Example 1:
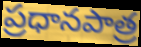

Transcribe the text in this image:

ప్రధానపాత్ర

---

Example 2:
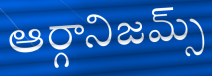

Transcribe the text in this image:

ఆర్గానిజమ్స్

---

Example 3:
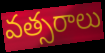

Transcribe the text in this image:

వత్సరాలు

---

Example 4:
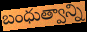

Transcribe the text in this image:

బంధుత్వాన్ని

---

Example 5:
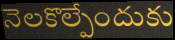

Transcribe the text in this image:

నెలకొల్పేందుకు